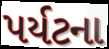
પર્યટના